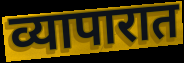
व्यापारात